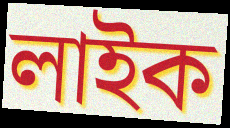
লাইক